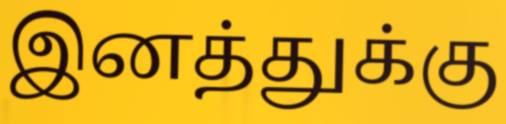
இனத்துக்கு